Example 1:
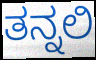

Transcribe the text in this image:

ತನ್ನಲಿ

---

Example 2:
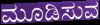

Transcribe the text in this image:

ಮೂಡಿಸುವ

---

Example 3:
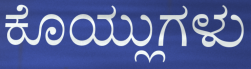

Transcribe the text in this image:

ಕೊಯ್ಲುಗಳು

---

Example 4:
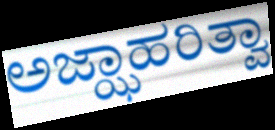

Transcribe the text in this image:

ಅಜ್ಝಾಹರಿತ್ವಾ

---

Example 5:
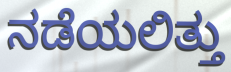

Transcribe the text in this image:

ನಡೆಯಲಿತ್ತು